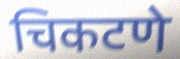
चिकटणे